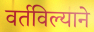
वर्तविल्याने